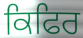
ਕਿਫਿਰ